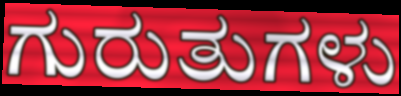
ಗುರುತುಗಳು